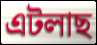
এটলাছ